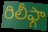
రిలీఫ్గా